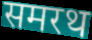
समरथ